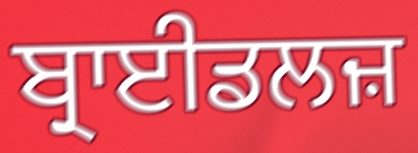
ਬ੍ਰਾਈਡਲਜ਼